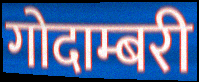
गोदाम्बरी